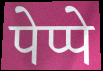
पेप्पे